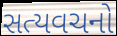
સત્યવચનો